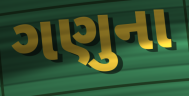
ગણુના